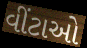
વીંટાઓ